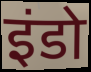
इंडो